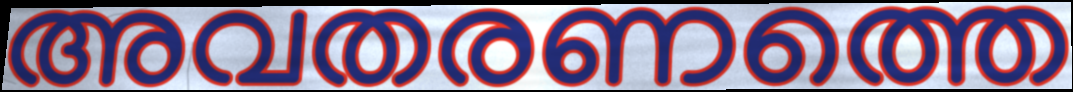
അവതരണത്തെ